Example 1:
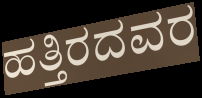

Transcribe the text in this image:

ಹತ್ತಿರದವರ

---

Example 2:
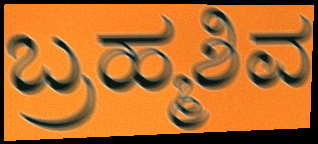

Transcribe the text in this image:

ಬ್ರಹ್ಮಶಿವ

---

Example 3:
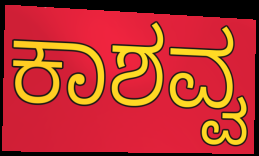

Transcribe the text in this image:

ಕಾಶವ್ವ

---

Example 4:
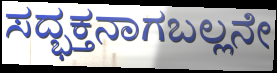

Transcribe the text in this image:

ಸದ್ಭಕ್ತನಾಗಬಲ್ಲನೇ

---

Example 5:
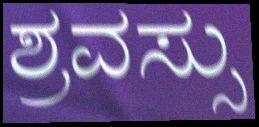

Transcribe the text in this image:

ಶ್ರವಸ್ಸು